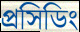
প্রসিডিং